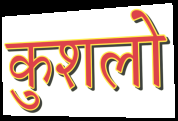
कुशलो